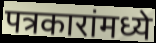
पत्रकारांमध्ये